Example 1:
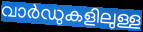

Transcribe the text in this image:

വാർഡുകളിലുള്ള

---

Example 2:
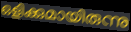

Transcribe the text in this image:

ഒളിക്കുമായിരുന്നു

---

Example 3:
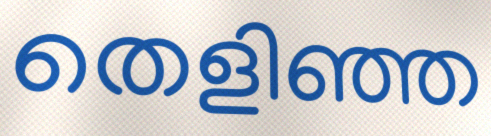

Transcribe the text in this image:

തെളിഞ്ഞ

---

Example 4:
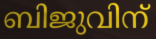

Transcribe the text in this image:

ബിജുവിന്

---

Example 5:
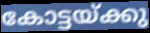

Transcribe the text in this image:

കോട്ടയ്ക്കു